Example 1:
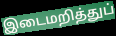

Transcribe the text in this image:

இடைமறித்துப்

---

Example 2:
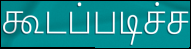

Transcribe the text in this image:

கூடப்படிச்ச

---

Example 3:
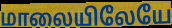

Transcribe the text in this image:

மாலையிலேயே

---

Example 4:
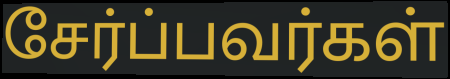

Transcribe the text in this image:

சேர்ப்பவர்கள்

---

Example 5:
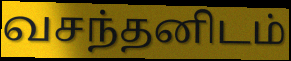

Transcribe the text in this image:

வசந்தனிடம்